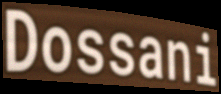
Dossani